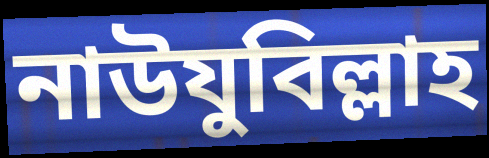
নাউযুবিল্লাহ